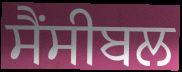
ਸੈਂਸੀਬਲ